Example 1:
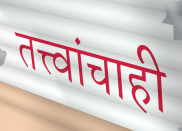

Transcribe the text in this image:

तत्त्वांचाही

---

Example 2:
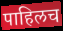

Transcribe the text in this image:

पाहिलच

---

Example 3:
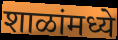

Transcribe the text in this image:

शाळांमध्ये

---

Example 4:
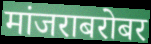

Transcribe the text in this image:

मांजराबरोबर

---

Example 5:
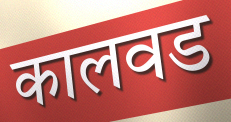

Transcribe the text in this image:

कालवड